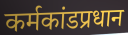
कर्मकांडप्रधान